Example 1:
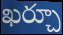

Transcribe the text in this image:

ఖర్చూ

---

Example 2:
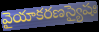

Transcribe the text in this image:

వైయాకరణస్యైషః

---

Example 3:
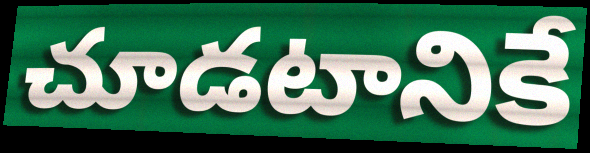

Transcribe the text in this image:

చూడటానికే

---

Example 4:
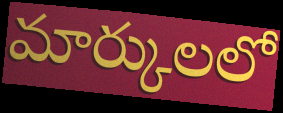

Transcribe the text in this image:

మార్కులలో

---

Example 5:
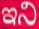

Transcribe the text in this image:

ఇని